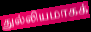
துல்லியமாகக்